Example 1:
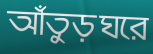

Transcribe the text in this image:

আঁতুড়ঘরে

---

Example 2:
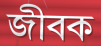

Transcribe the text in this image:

জীবক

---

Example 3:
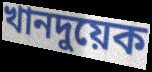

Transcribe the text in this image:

খানদুয়েক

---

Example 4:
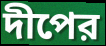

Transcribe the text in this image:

দীপের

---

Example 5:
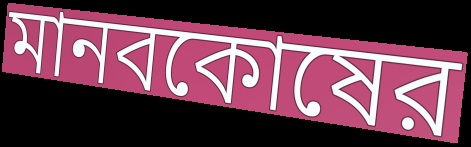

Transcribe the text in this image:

মানবকোষের